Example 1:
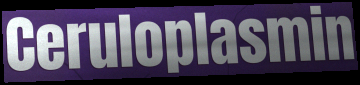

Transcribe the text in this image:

Ceruloplasmin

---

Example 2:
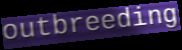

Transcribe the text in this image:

outbreeding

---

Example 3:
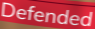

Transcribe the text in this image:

Defended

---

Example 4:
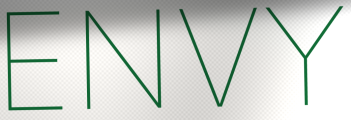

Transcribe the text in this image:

ENVY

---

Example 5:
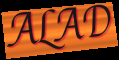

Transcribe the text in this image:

ALAD